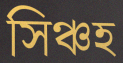
সিঞ্চহ